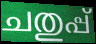
ചതുപ്പ്